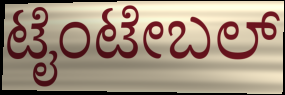
ಟೈಂಟೇಬಲ್